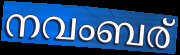
നവംബര്